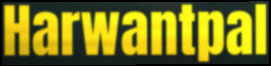
Harwantpal